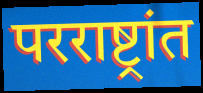
परराष्ट्रांत